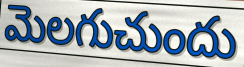
మెలగుచుందు